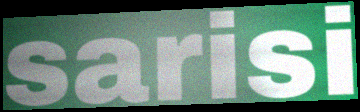
sarisi